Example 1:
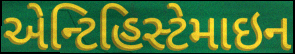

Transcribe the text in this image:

એન્ટિહિસ્ટેમાઇન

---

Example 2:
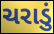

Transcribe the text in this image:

ચરાડું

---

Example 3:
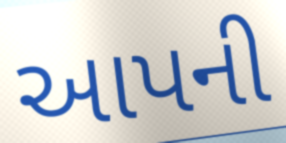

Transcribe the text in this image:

આપની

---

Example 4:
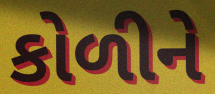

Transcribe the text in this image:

કોળીને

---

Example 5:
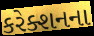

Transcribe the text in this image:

કરેક્શનના